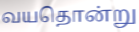
வயதொன்று